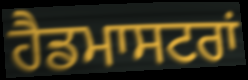
ਹੈਡਮਾਸਟਰਾਂ